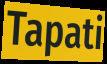
Tapati